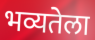
भव्यतेला